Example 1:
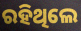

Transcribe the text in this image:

ରହିଥିଲେ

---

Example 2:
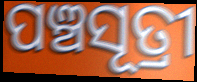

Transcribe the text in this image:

ପଞ୍ଚସୂତ୍ରୀ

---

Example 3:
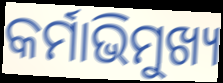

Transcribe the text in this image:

କର୍ମାଭିମୁଖ୍ୟ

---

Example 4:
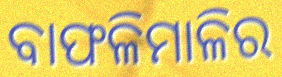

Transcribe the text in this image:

ବାଫଳିମାଳିର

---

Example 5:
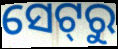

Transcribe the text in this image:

ସେଟ୍‌ରୁ